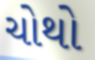
ચોથો